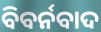
ବିବର୍ନବାଦ